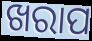
ଖରାପ